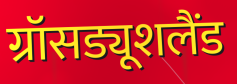
ग्रॉसड्यूशलैंड